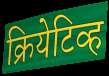
क्रियेटिव्ह